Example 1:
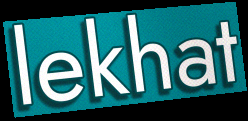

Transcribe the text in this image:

lekhat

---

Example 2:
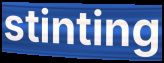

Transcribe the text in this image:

stinting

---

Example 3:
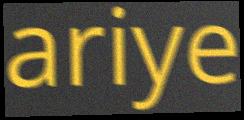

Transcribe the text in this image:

ariye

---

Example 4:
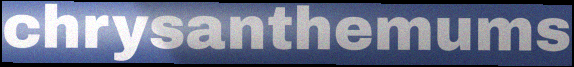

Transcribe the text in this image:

chrysanthemums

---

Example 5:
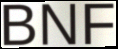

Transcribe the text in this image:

BNF